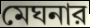
মেঘনার